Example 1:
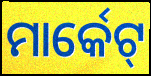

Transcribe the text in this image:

ମାର୍କେଟ୍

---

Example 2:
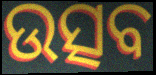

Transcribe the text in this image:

ଉତ୍ସବ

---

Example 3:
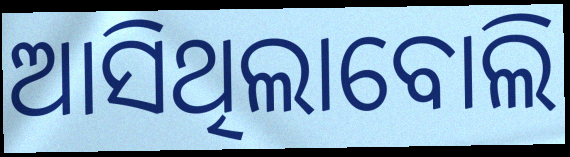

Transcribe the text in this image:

ଆସିଥିଲାବୋଲି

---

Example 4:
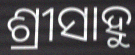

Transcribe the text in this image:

ଶ୍ରୀସାହୁ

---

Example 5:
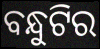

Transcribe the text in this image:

ବନ୍ଧୁଟିର